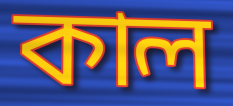
কাল